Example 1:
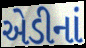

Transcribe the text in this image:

એડીનાં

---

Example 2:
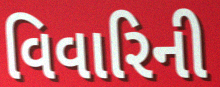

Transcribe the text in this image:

વિવારિની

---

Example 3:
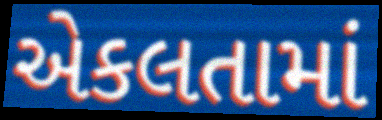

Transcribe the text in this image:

એકલતામાં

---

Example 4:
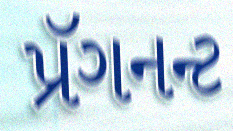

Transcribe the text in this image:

પ્રૅગનન્ટ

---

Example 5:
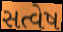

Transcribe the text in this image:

સત્વેષ